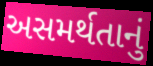
અસમર્થતાનું